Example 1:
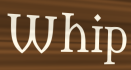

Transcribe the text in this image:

Whip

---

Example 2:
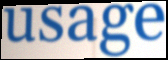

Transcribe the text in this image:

usage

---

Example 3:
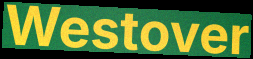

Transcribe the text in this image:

Westover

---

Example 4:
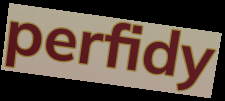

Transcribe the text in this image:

perfidy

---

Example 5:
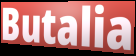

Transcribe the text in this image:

Butalia